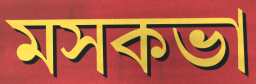
মসকভা